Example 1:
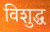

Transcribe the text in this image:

विशुद्ध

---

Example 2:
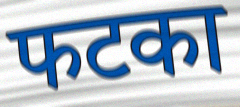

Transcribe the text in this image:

फटका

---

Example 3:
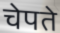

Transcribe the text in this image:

चेपते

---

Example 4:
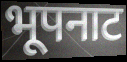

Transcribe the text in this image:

भूपनाट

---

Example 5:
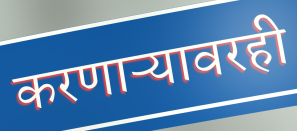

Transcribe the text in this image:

करणाऱ्यावरही